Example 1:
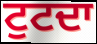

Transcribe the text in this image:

ਟੁਟਦਾ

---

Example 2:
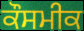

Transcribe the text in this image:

ਕੌਸਮੀਕ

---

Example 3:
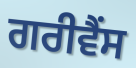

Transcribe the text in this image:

ਗਰੀਵੈਂਸ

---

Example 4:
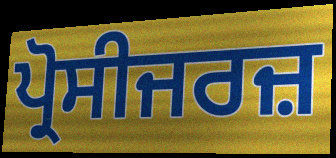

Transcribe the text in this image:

ਪ੍ਰੋਸੀਜਰਜ਼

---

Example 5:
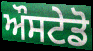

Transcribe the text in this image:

ਔਸਟੇਡੋ